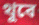
থুবে